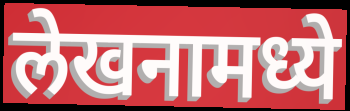
लेखनामध्ये